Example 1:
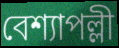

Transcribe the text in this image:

বেশ্যাপল্লী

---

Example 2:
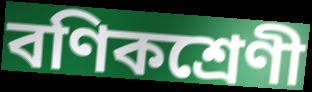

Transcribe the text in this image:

বণিকশ্রেণী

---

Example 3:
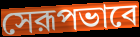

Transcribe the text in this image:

সেরূপভাবে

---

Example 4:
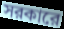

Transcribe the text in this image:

সরকারে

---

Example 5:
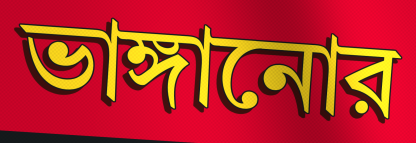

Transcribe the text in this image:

ভাঙ্গানোর